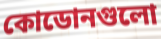
কোডোনগুলো